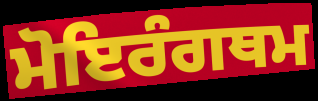
ਮੋਇਰੰਗਥਮ